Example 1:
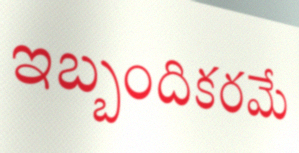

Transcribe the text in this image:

ఇబ్బందికరమే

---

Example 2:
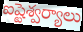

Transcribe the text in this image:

ఐష్టెశ్వర్యాలు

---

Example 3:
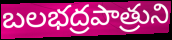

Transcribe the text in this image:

బలభద్రపాత్రుని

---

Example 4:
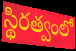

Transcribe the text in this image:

స్థిరత్వంలో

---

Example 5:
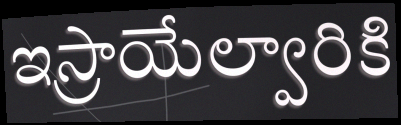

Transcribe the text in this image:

ఇస్రాయేల్వారికి